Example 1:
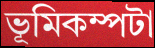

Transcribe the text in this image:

ভূমিকম্পটা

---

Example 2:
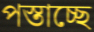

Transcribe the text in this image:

পস্তাচ্ছে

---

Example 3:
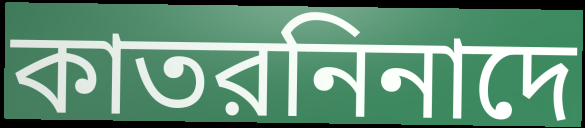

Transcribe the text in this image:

কাতরনিনাদে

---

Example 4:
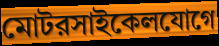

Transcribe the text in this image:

মোটরসাইকেলযোগে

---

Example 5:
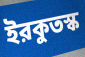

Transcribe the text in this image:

ইরকুতস্ক